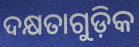
ଦକ୍ଷତାଗୁଡ଼ିକ